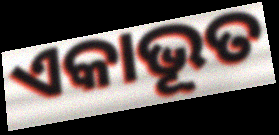
ଏକାଭୂତ